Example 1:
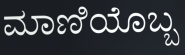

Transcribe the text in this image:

ಮಾಣಿಯೊಬ್ಬ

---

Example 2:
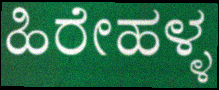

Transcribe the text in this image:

ಹಿರೇಹಳ್ಳ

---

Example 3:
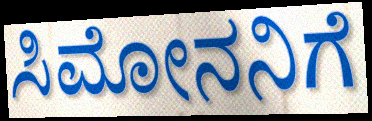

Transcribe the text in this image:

ಸಿಮೋನನಿಗೆ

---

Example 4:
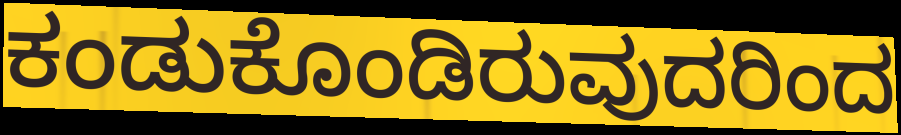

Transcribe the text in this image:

ಕಂಡುಕೊಂಡಿರುವುದರಿಂದ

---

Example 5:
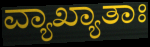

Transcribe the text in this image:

ವ್ಯಾಖ್ಯಾತಾಃ